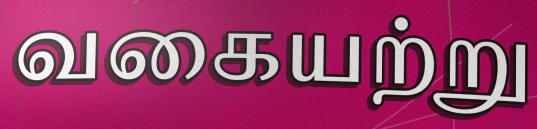
வகையற்று